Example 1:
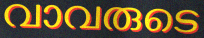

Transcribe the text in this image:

വാവരുടെ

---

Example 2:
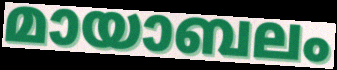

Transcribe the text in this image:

മായാബലം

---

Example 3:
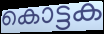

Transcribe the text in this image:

കൊട്ടക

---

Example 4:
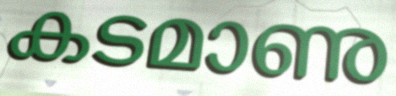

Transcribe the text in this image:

കടമാണു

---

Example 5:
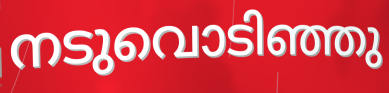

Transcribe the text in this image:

നടുവൊടിഞ്ഞു